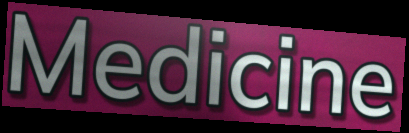
Medicine